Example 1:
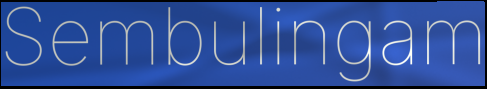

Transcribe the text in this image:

Sembulingam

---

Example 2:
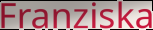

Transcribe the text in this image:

Franziska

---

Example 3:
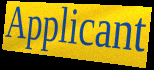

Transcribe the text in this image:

Applicant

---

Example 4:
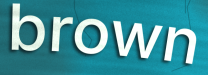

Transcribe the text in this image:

brown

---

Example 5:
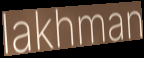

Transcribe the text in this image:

lakhman